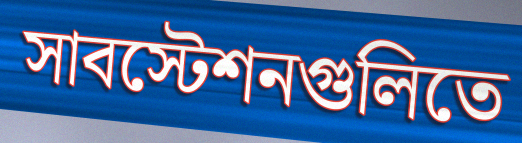
সাবস্টেশনগুলিতে